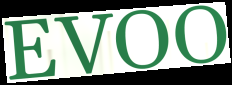
EVOO